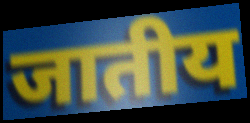
जातीय